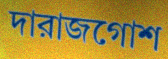
দারাজগোশ